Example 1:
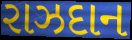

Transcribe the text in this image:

રાઝદાન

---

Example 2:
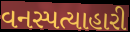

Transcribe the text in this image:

વનસ્પત્યાહારી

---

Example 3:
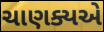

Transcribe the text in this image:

ચાણક્યએ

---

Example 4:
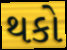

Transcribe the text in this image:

થકો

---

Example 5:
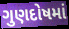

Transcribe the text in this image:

ગુણદોષમાં